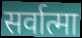
सर्वात्मा